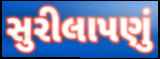
સુરીલાપણું